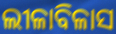
ଲୀଳାବିଳାସ